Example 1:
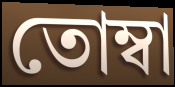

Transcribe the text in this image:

তোম্বা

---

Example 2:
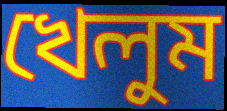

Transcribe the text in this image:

খেলুম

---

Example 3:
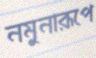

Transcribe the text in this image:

নমুনারূপে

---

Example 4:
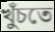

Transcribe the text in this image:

খুঁচতে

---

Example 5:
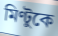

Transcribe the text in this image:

মিণ্টুকে